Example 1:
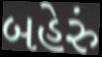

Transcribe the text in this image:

બહેરું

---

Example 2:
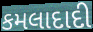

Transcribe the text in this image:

કમલાદાદી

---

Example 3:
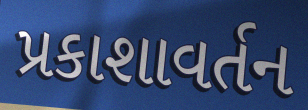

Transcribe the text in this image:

પ્રકાશાવર્તન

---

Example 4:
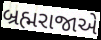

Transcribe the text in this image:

બ્રહ્મરાજાએ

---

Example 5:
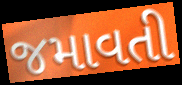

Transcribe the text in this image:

જમાવતી